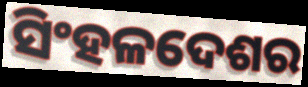
ସିଂହଳଦେଶର